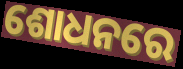
ଶୋଧନରେ